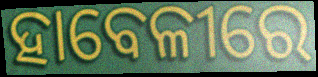
ହାବେଳୀରେ